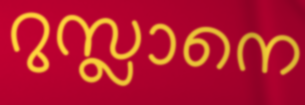
റുസ്ലാനെ